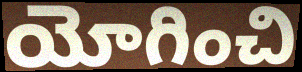
యోగించి